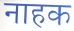
नाहक